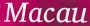
Macau